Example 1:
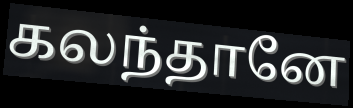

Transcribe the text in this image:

கலந்தானே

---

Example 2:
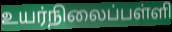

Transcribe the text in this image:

உயர்நிலைப்பள்ளி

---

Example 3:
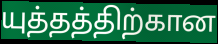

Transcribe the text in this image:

யுத்தத்திற்கான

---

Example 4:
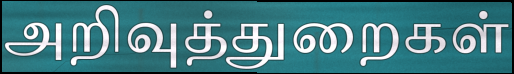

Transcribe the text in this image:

அறிவுத்துறைகள்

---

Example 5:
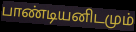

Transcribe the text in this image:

பாண்டியனிடமும்